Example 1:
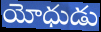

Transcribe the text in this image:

యోధుడు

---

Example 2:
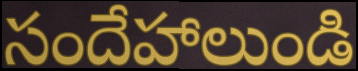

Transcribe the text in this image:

సందేహాలుండి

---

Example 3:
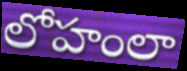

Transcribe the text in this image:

లోహంలా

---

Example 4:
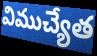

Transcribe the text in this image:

విముచ్యేత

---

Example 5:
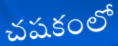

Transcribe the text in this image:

చషకంలో